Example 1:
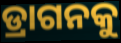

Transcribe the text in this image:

ଡ୍ରାଗନକୁ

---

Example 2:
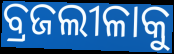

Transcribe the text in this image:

ବ୍ରଜଲୀଳାକୁ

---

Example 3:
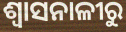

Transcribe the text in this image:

ଶ୍ୱାସନାଳୀରୁ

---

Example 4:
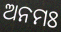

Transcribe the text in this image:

ଅନମଃ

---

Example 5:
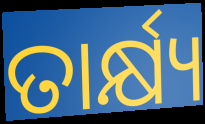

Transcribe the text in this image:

ତାର୍କ୍ଷ୍ୟ